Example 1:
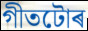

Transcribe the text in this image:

গীতটোৰ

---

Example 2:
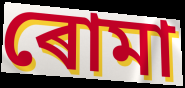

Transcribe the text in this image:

ৰোমা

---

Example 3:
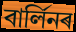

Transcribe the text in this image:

বাৰ্লিনৰ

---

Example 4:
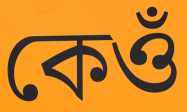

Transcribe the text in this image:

কেওঁ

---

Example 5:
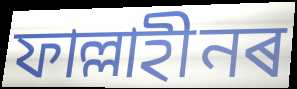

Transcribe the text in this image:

ফাল্লাহীনৰ